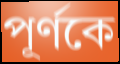
পূর্ণকে